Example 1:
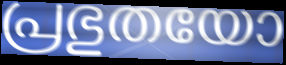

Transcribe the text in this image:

പ്രഭുതയോ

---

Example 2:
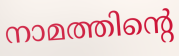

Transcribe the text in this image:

നാമത്തിന്റെ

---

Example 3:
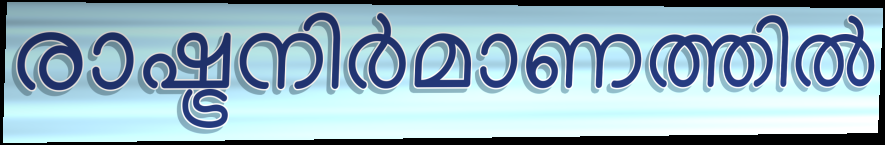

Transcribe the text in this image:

രാഷ്ട്രനിർമാണത്തിൽ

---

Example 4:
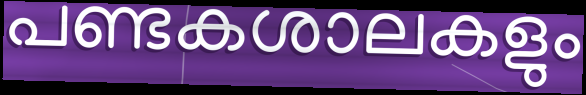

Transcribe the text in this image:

പണ്ടകശാലകളും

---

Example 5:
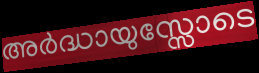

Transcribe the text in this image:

അർദ്ധായുസ്സോടെ